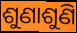
ଶୁଣାଶୁଣି